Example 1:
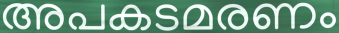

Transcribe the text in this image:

അപകടമരണം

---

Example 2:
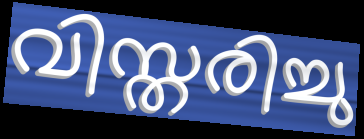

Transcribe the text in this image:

വിസ്തരിച്ചു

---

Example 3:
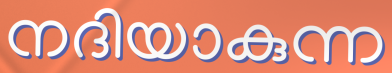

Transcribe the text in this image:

നദിയാകുന്ന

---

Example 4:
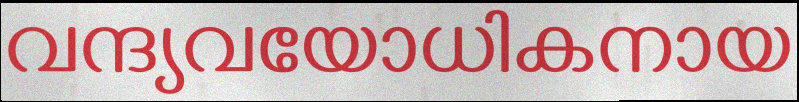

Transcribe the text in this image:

വന്ദ്യവയോധികനായ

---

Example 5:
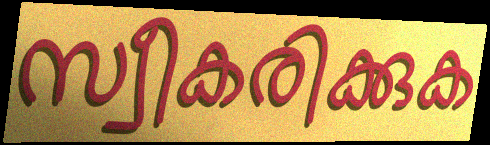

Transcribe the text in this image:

സ്വീകരിക്കുക